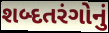
શબ્દતરંગોનું